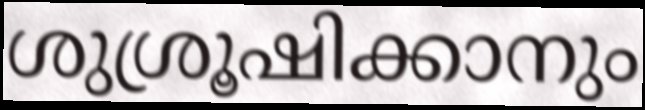
ശുശ്രൂഷിക്കാനും